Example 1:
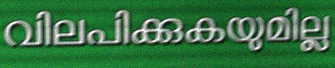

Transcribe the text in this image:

വിലപിക്കുകയുമില്ല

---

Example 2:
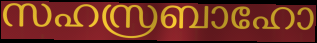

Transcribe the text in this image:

സഹസ്രബാഹോ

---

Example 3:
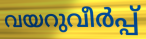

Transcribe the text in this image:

വയറുവീർപ്പ്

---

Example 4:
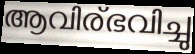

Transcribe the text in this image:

ആവിര്ഭവിച്ചു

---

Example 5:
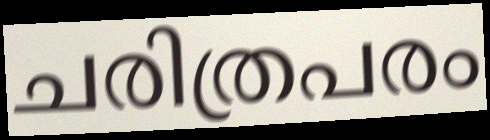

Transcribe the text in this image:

ചരിത്രപരം